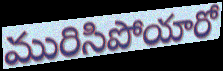
మురిసిపోయారో